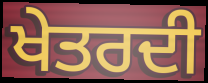
ਖੇਤਰਦੀ